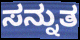
ಸನ್ನುತ